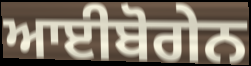
ਆਈਬੋਗੇਨ